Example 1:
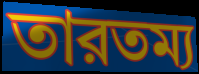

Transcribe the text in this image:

তারতম্য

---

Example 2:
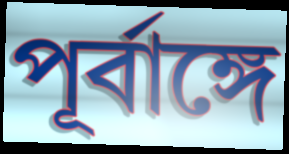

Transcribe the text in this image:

পূর্বাঙ্গে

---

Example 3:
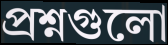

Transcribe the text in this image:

প্রশ্নগুলো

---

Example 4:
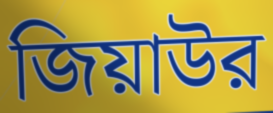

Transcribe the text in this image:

জিয়াউর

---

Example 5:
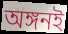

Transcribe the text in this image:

অঙ্গনই